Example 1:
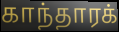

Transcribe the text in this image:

காந்தாரக்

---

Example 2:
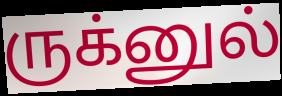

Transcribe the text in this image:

ருக்னுல்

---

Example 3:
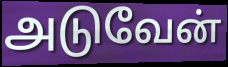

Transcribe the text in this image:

அடுவேன்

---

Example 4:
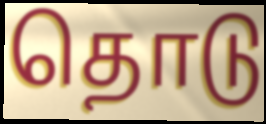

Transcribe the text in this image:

தொடு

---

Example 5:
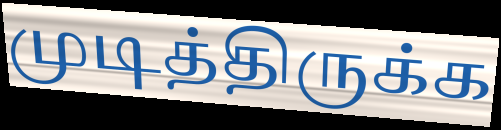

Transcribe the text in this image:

முடித்திருக்க